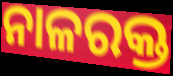
ନାଳରକ୍ତ